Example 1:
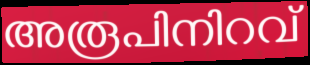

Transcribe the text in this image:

അരൂപിനിറവ്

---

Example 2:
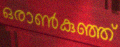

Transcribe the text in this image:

ഒരാൺകുഞ്ഞ്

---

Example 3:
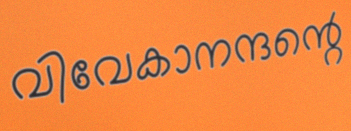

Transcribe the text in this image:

വിവേകാനന്ദന്റെ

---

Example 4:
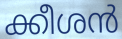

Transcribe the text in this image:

ക്കീശൻ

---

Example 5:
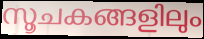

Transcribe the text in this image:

സൂചകങ്ങളിലും